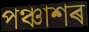
পঞ্চাশৰ